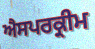
ਐਸਪਰਕ੍ਰੀਮ